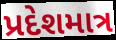
પ્રદેશમાત્ર